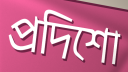
প্রদিশো